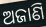
ଅଜାଣି